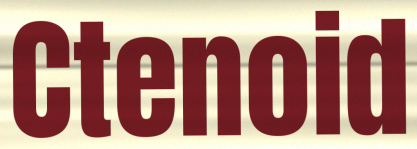
Ctenoid